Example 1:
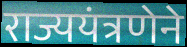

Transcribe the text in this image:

राज्ययंत्रणेने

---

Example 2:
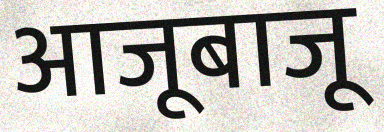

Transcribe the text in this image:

आजूबाजू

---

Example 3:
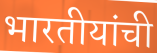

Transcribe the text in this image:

भारतीयांची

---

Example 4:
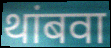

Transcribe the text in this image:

थांबवा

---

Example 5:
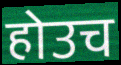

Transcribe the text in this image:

होउच